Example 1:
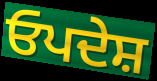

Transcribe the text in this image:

ਓਪਦੇਸ਼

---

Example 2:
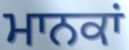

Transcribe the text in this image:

ਮਾਨਕਾਂ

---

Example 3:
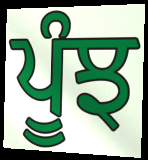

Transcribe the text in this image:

ਪੂੰਝ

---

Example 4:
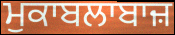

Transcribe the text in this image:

ਮੁਕਾਬਲਾਬਾਜ਼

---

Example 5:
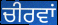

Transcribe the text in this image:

ਚੀਰਵਾਂ